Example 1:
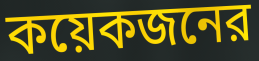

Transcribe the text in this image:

কয়েকজনের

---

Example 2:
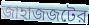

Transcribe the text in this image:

জাহাজজটের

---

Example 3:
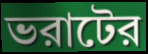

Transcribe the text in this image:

ভরাটের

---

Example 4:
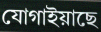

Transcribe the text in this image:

যোগাইয়াছে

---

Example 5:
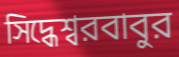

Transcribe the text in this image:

সিদ্ধেশ্বরবাবুর